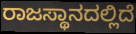
ರಾಜಸ್ಥಾನದಲ್ಲಿದೆ